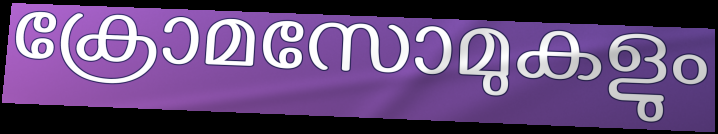
ക്രോമസോമുകളും